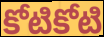
కోటికోటి